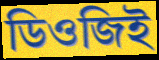
ডিওজিই